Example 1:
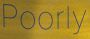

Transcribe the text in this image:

Poorly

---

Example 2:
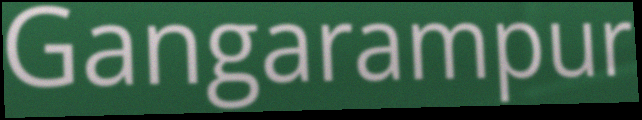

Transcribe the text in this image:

Gangarampur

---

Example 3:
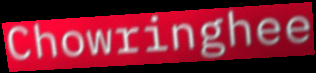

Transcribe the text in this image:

Chowringhee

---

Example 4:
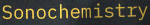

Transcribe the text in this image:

Sonochemistry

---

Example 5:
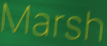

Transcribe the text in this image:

Marsh